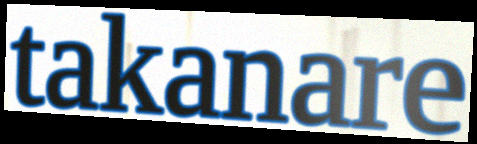
takanare